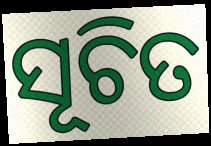
ସୂଚିତ